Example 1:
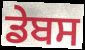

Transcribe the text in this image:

ਡੇਬਸ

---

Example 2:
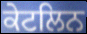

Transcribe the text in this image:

ਕੇਟਲਿਨ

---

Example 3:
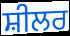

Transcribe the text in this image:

ਸ਼ੀਲਰ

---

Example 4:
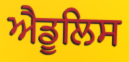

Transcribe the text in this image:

ਐਡੂਲਿਸ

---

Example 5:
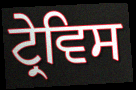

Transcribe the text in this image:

ਟ੍ਰੇਵਿਸ